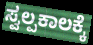
ಸ್ವಲ್ಪಕಾಲಕ್ಕೆ